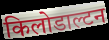
किलोडाल्टन